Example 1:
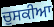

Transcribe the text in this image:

ਚੁਸਕੀਆ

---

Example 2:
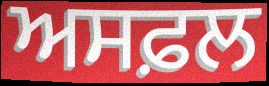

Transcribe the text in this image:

ਅਸਫ਼ਲ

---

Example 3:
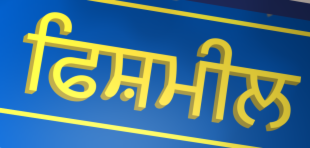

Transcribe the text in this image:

ਫਿਸ਼ਮੀਲ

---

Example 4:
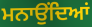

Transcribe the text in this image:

ਮਨਾਉਂਦਿਆਂ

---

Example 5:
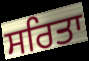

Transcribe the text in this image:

ਸਰਿਤਾ